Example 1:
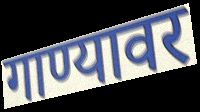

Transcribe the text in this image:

गाण्यावर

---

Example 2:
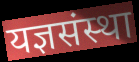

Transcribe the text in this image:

यज्ञसंस्था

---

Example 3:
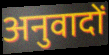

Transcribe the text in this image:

अनुवादों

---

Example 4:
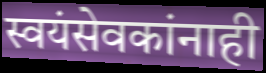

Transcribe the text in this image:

स्वयंसेवकांनाही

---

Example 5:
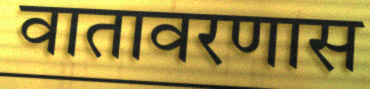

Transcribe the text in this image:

वातावरणास